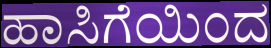
ಹಾಸಿಗೆಯಿಂದ